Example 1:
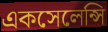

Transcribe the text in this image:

একসেলেন্সি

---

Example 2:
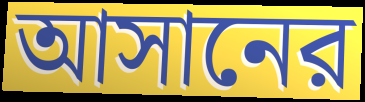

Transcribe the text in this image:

আসানের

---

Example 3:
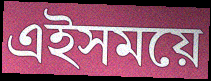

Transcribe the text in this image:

এইসময়ে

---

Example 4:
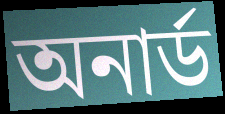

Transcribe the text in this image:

অনার্ড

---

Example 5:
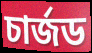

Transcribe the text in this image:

চার্জড